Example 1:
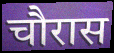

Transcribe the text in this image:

चौरास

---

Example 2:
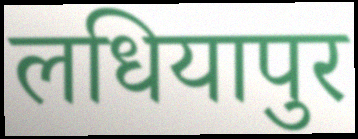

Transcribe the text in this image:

लधियापुर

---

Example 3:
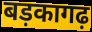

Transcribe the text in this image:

बड़कागढ़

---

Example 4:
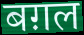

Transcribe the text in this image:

बग़ल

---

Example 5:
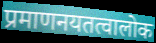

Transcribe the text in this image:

प्रमाणनयतत्वालोक